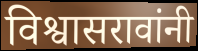
विश्वासरावांनी